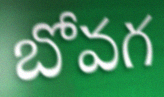
బోవగ